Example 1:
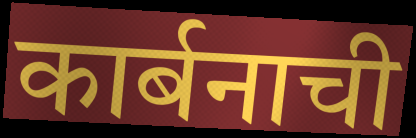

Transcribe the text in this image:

कार्बनाची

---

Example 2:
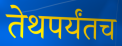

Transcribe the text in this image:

तेथपर्यंतच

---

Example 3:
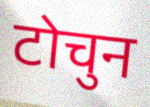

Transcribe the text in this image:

टोचुन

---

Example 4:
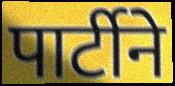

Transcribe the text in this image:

पार्टीने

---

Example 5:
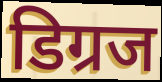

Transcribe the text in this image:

डिग्रज